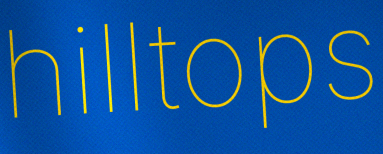
hilltops